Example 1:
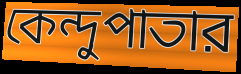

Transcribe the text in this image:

কেন্দুপাতার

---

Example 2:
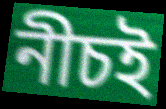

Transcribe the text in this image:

নীচই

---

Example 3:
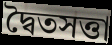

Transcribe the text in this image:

দ্বৈতসত্তা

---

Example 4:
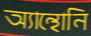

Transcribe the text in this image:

অ্যান্থোনি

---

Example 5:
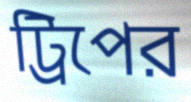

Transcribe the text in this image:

ট্রিপের